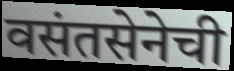
वसंतसेनेची